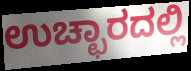
ಉಚ್ಛಾರದಲ್ಲಿ